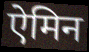
ऐमिन